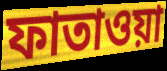
ফাতাওয়া